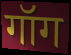
गॉग